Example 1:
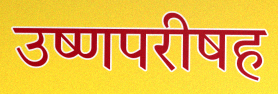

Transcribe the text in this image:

उष्णपरीषह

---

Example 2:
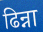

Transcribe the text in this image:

ढिन्ना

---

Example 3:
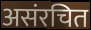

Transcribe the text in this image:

असंरचित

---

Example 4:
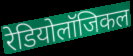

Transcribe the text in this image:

रेडियोलॉजिकल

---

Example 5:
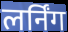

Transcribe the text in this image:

लर्निंग